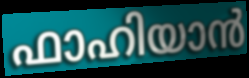
ഫാഹിയാൻ